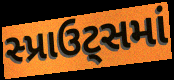
સ્પ્રાઉટ્સમાં